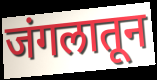
जंगलातून